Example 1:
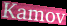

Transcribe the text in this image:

Kamov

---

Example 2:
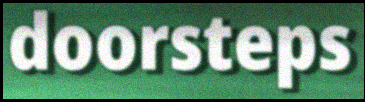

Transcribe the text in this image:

doorsteps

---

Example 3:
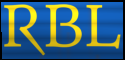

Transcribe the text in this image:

RBL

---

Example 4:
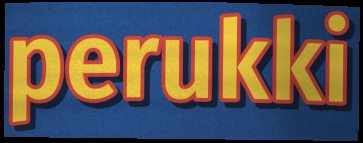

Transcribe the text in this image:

perukki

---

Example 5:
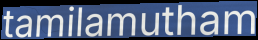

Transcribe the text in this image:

tamilamutham